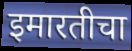
इमारतीचा